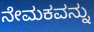
ನೇಮಕವನ್ನು